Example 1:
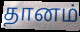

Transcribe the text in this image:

தானம்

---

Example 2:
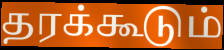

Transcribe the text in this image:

தரக்கூடும்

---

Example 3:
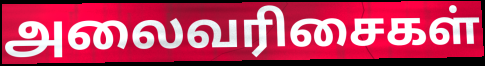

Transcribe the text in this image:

அலைவரிசைகள்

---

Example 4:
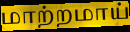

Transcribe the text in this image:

மாற்றமாய்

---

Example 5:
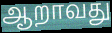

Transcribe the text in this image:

ஆறாவது